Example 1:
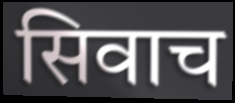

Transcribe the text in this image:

सिवाच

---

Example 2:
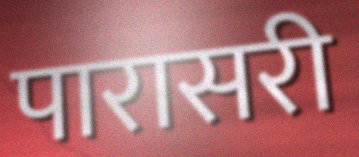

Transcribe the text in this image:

पारासरी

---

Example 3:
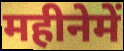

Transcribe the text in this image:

महीनेमें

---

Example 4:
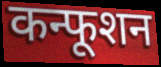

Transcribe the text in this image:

कन्फूशन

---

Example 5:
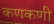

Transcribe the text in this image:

कणकणी